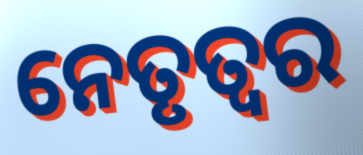
ନେତୃତ୍ବର